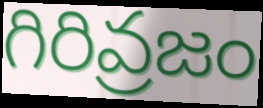
గిరివ్రజం